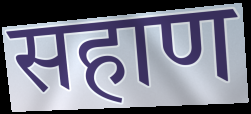
सहाण